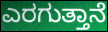
ಎರಗುತ್ತಾನೆ